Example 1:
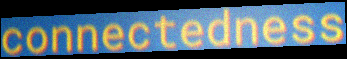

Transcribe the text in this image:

connectedness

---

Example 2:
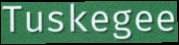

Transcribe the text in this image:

Tuskegee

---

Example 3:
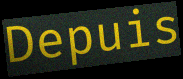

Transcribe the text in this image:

Depuis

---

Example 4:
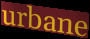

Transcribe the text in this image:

urbane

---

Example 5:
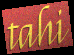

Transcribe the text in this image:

tahi